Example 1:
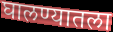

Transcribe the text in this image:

घालण्यातला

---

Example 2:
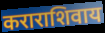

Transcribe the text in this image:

कराराशिवाय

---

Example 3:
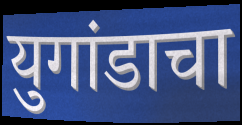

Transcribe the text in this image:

युगांडाचा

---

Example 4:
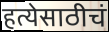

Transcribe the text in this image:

हत्येसाठीचं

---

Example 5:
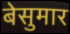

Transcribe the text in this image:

बेसुमार